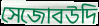
সেজোবউদি